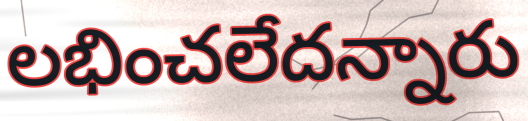
లభించలేదన్నారు